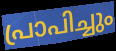
പ്രാപിച്ചും